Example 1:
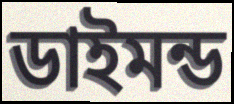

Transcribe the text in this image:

ডাইমন্ড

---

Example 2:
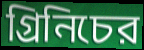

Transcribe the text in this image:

গ্রিনিচের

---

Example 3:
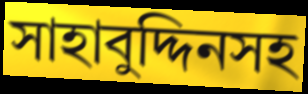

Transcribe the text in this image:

সাহাবুদ্দিনসহ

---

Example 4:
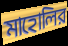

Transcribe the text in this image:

মাহোলির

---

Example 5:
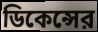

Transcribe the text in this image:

ডিকেন্সের